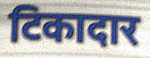
टिकादार